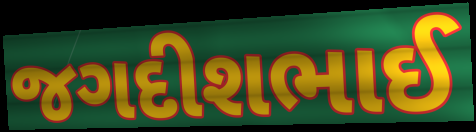
જગદીશભાઈ